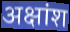
अक्षांश